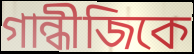
গান্ধীজিকে